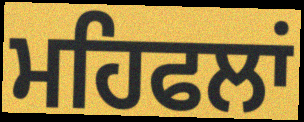
ਮਹਿਫਲਾਂ